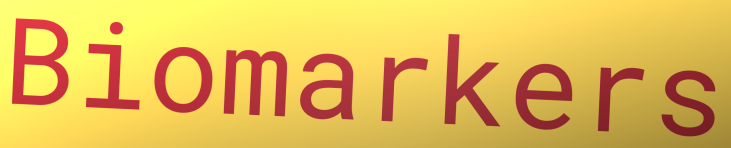
Biomarkers